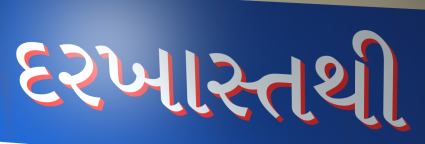
દરખાસ્તથી